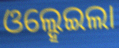
ଓଲ୍ହେଇଲା